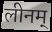
लीनम्